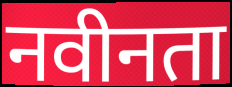
नवीनता